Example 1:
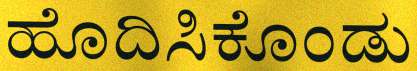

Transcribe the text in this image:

ಹೊದಿಸಿಕೊಂಡು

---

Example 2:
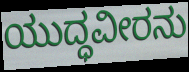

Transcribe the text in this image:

ಯುದ್ಧವೀರನು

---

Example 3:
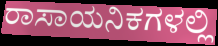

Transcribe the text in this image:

ರಾಸಾಯನಿಕಗಳಲ್ಲಿ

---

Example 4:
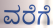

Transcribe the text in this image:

ವರೆಗೆ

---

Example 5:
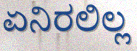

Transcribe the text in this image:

ಏನಿರಲಿಲ್ಲ